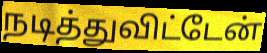
நடித்துவிட்டேன்